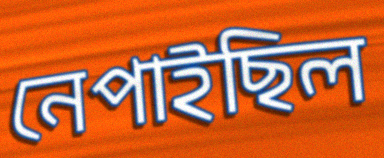
নেপাইছিল